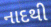
નાદથી